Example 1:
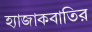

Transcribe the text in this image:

হ্যাজাকবাতির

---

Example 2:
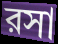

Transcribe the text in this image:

রসা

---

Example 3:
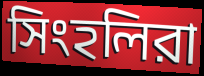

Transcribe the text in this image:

সিংহলিরা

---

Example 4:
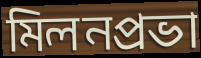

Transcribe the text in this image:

মিলনপ্রভা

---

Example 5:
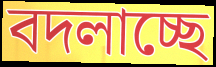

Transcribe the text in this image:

বদলাচ্ছে